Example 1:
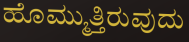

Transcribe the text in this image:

ಹೊಮ್ಮುತ್ತಿರುವುದು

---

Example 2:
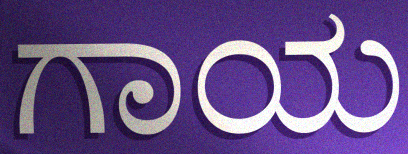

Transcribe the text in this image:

ಗಾಯ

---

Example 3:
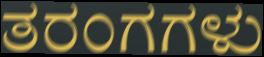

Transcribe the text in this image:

ತರಂಗಗಳು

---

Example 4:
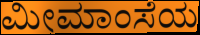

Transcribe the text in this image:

ಮೀಮಾಂಸೆಯ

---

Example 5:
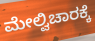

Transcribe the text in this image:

ಮೇಲ್ವಿಚಾರಕ್ಕೆ